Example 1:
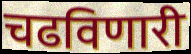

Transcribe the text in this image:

चढविणारी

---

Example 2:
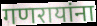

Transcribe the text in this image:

गणरायांना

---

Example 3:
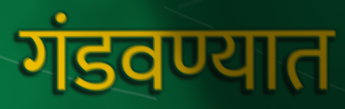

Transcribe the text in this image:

गंडवण्यात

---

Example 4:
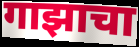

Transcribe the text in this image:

गाझाचा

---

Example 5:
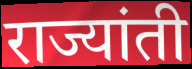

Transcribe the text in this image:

राज्यांती